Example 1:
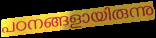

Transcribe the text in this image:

പഠനങ്ങളായിരുന്നു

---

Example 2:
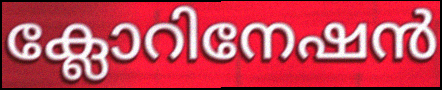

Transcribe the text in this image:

ക്ലോറിനേഷൻ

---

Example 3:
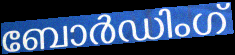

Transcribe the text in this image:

ബോർഡിംഗ്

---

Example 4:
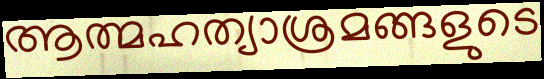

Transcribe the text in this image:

ആത്മഹത്യാശ്രമങ്ങളുടെ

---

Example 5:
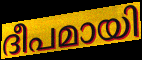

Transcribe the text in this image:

ദീപമായി